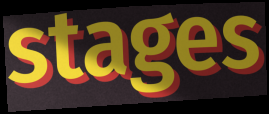
stages